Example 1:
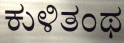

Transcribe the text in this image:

ಕುಳಿತಂಥ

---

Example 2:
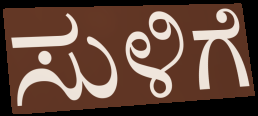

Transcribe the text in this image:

ಸುಳಿಗೆ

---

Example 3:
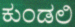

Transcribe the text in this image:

ಕುಂಡಲಿ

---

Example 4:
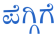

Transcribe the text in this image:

ಪೆಗ್ಗಿಗೆ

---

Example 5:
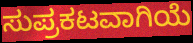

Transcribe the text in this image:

ಸುಪ್ರಕಟವಾಗಿಯೆ